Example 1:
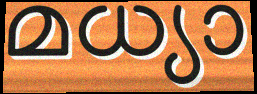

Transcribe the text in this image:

മധ്യാ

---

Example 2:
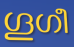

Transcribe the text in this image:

ഗൂഗീ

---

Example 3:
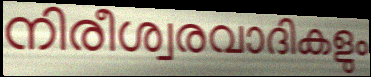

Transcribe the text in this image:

നിരീശ്വരവാദികളും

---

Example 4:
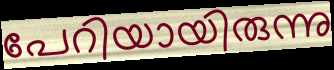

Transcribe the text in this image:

പേറിയായിരുന്നു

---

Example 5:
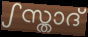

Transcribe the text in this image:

ഽസ്താദ്